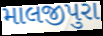
માલજીપુરા